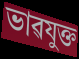
ভাৱযুক্ত